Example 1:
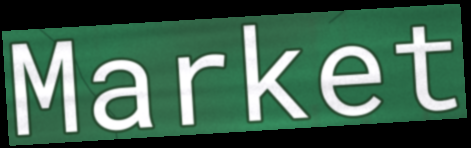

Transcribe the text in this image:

Market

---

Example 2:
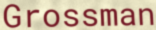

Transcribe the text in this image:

Grossman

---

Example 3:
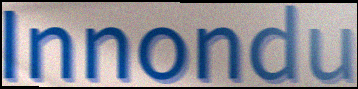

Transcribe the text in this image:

Innondu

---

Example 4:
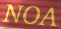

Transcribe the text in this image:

NOA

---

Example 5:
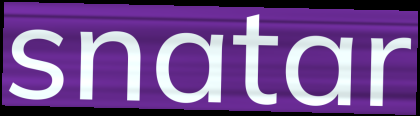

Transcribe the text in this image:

snatar